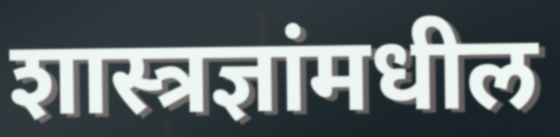
शास्त्रज्ञांमधील